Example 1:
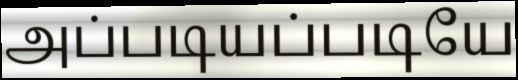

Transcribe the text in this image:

அப்படியப்படியே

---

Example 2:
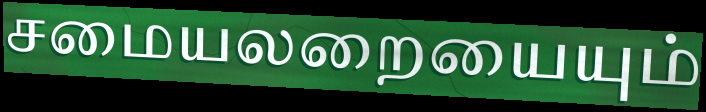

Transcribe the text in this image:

சமையலறையையும்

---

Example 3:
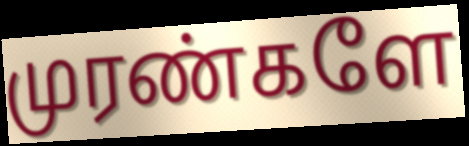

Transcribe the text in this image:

முரண்களே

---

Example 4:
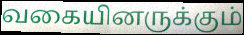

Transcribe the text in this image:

வகையினருக்கும்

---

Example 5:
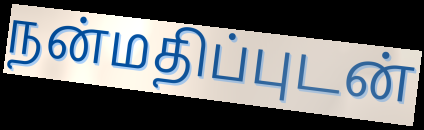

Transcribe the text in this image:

நன்மதிப்புடன்